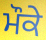
ਮੌਕੇ